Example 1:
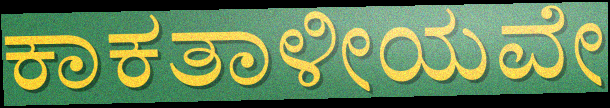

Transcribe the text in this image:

ಕಾಕತಾಳೀಯವೇ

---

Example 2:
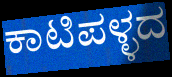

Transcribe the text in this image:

ಕಾಟಿಪಳ್ಳದ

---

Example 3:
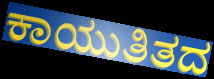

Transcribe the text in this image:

ಕಾಯುತಿತದ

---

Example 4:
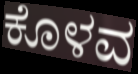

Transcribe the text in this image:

ಕೊಳವ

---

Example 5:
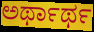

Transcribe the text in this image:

ಅರ್ಥಾರ್ಥ